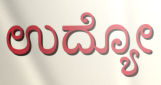
ಉದ್ಯೋ